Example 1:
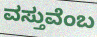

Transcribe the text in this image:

ವಸ್ತುವೆಂಬ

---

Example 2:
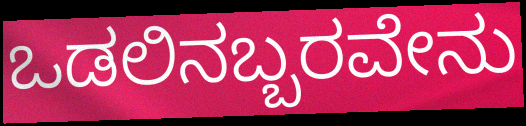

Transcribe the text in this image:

ಒಡಲಿನಬ್ಬರವೇನು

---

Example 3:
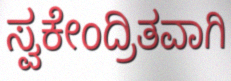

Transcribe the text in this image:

ಸ್ವಕೇಂದ್ರಿತವಾಗಿ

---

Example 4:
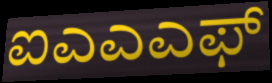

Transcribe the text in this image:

ಐಎಎಎಫ್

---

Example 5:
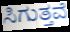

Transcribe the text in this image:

ಸಿಗುತ್ತವೆ